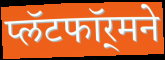
प्लॅटफॉर्मने